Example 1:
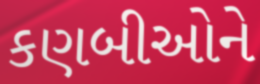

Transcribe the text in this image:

કણબીઓને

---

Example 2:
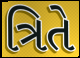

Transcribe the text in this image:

ત્રિતે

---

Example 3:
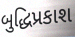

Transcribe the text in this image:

બુદ્ધિપ્રકાશ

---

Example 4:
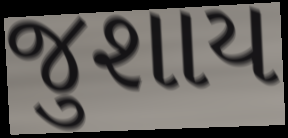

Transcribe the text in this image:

જુશાય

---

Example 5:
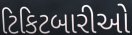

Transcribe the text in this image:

ટિકિટબારીઓ